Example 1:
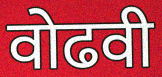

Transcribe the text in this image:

वोढवी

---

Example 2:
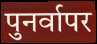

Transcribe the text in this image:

पुनर्वापर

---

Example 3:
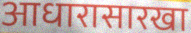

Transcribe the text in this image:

आधारासारखा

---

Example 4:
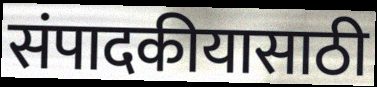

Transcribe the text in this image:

संपादकीयासाठी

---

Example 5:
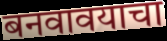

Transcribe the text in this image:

बनवावयाचा